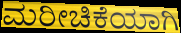
ಮರೀಚಿಕೆಯಾಗಿ